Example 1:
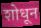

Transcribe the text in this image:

शोधून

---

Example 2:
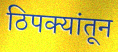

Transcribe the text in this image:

ठिपक्यांतून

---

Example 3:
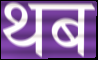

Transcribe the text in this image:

थब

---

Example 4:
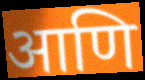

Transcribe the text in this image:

आणि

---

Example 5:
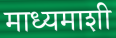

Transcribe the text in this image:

माध्यमाशी